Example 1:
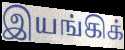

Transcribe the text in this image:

இயங்கிக்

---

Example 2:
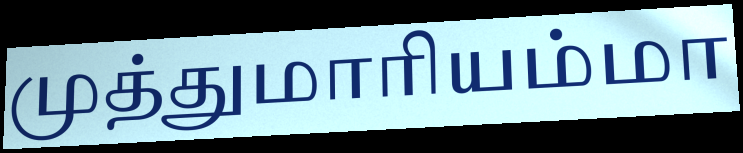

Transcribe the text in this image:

முத்துமாரியம்மா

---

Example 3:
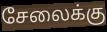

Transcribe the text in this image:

சேலைக்கு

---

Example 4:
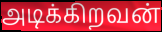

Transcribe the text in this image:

அடிக்கிறவன்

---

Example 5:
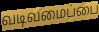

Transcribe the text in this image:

வடிவமைப்பை